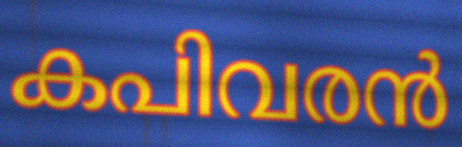
കപിവരൻ